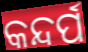
କନ୍ଦର୍ପ